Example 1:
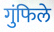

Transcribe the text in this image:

गुंफिले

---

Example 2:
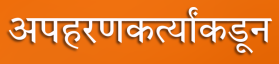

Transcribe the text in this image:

अपहरणकर्त्यांकडून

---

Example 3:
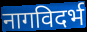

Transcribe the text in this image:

नागविदर्भ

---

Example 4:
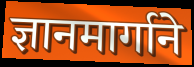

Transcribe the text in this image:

ज्ञानमार्गाने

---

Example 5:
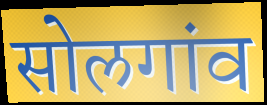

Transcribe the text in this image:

सोलगांव